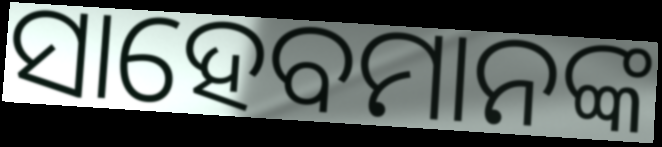
ସାହେବମାନଙ୍କ